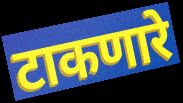
टाकणारे